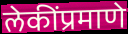
लेकींप्रमाणे